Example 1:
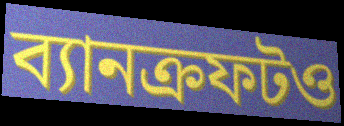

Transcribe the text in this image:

ব্যানক্রফটও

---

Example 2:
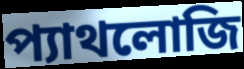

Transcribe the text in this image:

প্যাথলোজি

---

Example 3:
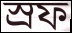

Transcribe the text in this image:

স্রফ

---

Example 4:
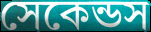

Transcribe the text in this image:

সেকেন্ডস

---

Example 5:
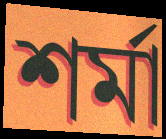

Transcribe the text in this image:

শর্মা